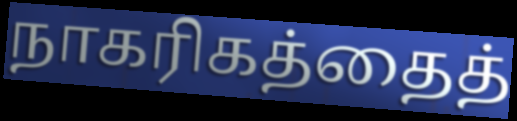
நாகரிகத்தைத்